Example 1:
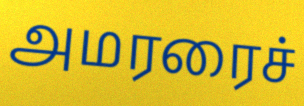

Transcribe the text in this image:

அமரரைச்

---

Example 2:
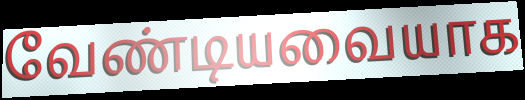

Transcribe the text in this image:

வேண்டியவையாக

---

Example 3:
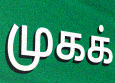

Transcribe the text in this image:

முகக்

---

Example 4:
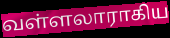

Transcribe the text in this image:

வள்ளலாராகிய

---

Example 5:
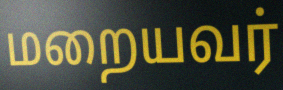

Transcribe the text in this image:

மறையவர்